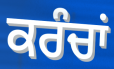
ਕਰੰਚਾਂ